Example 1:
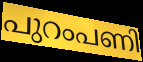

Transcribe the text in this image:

പുറംപണി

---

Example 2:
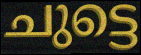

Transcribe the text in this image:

ചുട്ടെ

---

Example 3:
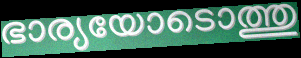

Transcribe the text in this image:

ഭാര്യയോടൊത്തു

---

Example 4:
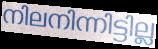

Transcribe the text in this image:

നിലനിന്നിട്ടില്ല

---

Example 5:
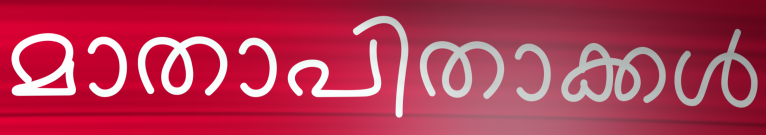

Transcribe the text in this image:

മാതാപിതാക്കൾ